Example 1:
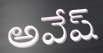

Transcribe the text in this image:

అవేష్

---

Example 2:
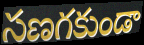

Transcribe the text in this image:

సణగకుండా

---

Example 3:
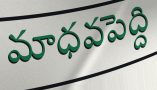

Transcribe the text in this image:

మాధవపెద్ది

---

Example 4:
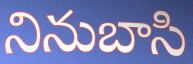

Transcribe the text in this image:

నినుబాసి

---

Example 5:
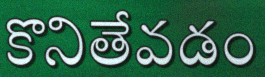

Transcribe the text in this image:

కొనితేవడం